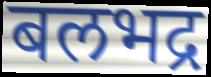
बलभद्र